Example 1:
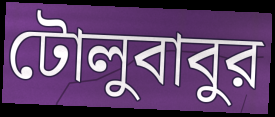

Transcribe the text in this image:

টোলুবাবুর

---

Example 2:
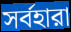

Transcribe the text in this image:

সর্বহারা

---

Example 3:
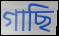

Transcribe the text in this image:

গাছি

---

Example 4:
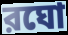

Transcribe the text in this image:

রঘো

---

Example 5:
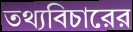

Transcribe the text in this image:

তথ্যবিচারের